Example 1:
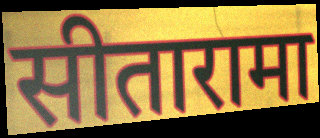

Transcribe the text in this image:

सीतारामा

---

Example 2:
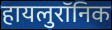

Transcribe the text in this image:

हायलुरॉनिक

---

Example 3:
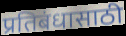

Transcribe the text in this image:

प्रतिबंधासाठी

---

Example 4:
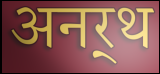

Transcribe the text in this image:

अनर्थ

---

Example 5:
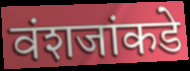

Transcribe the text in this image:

वंशजांकडे